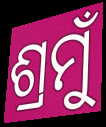
ଶ୍ରମୁଁ